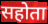
सहोता